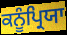
ਕਨੂੰਪ੍ਰਿਯਾ